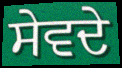
ਸੇਵਦੇ